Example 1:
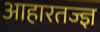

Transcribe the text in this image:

आहारतज्ज्ञ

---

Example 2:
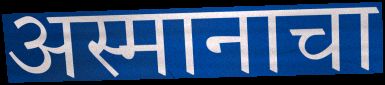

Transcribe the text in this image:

अस्मानाचा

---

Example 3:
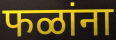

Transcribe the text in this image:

फळांना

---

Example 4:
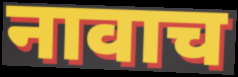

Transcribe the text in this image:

नावाच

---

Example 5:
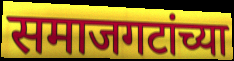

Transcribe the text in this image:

समाजगटांच्या